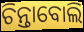
ଚିନ୍ତାବୋଲି